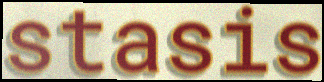
stasis